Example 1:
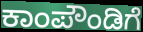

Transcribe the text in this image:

ಕಾಂಪೌಂಡಿಗೆ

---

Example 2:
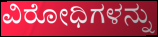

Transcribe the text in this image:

ವಿರೋಧಿಗಳನ್ನು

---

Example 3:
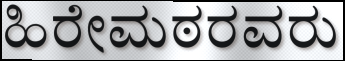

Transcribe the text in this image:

ಹಿರೇಮಠರವರು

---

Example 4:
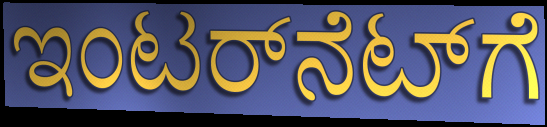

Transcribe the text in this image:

ಇಂಟರ್‌ನೆಟ್‌ಗೆ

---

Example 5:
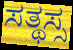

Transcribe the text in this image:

ಸತ್ಥಸ್ಸ